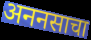
अननसाचा